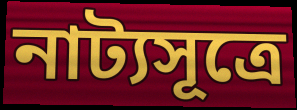
নাট্যসূত্রে